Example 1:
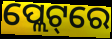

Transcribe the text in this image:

ପ୍ଲେଟ୍‌ରେ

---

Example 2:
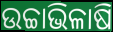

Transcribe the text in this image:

ଉଚ୍ଚାଭିଳାଷି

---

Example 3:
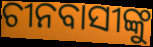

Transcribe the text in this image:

ଚୀନବାସୀଙ୍କୁ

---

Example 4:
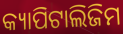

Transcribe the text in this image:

କ୍ୟାପିଟାଲିଜିମ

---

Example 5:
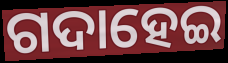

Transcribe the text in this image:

ଗଦାହେଇ